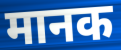
मानक